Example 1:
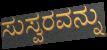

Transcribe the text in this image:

ಸುಸ್ವರವನ್ನು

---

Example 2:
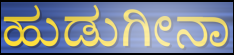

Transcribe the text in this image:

ಹುಡುಗೀನಾ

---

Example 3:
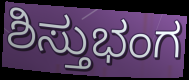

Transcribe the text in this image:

ಶಿಸ್ತುಭಂಗ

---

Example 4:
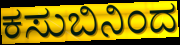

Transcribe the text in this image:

ಕಸುಬಿನಿಂದ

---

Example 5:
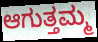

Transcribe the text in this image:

ಆಗುತ್ತಮ್ಮ